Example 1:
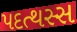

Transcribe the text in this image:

પદત્થસ્સ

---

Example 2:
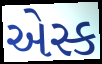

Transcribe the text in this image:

એસ્ક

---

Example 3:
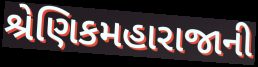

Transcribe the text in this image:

શ્રેણિકમહારાજાની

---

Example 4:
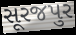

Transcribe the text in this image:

સૂરજપુર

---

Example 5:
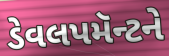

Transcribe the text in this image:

ડેવલપમૅન્ટને